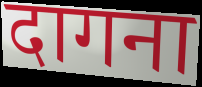
दागना